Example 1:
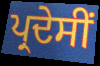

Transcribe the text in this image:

ਪ੍ਰਦੇਸੀਂ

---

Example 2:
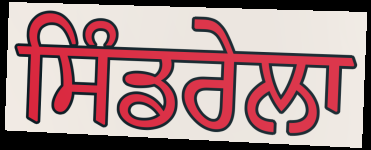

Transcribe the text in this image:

ਸਿੰਡਰੇਲਾ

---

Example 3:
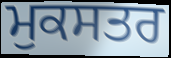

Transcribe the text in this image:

ਮੁਕਸਤਰ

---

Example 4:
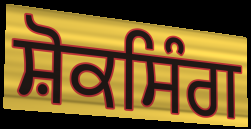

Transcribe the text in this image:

ਸ਼ੋਕਸਿੰਗ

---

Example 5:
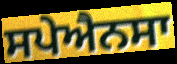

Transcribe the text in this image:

ਸਪੇਐਨਸਾ